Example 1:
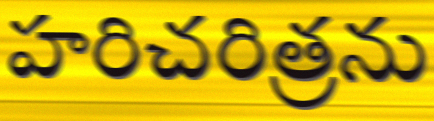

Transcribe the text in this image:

హరిచరిత్రను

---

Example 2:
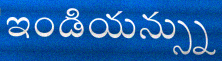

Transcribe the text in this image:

ఇండియన్స్ను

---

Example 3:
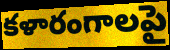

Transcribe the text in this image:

కళారంగాలపై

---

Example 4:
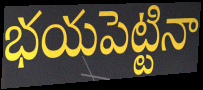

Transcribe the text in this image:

భయపెట్టినా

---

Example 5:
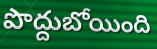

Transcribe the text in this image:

పొద్దుబోయింది